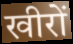
खीरों